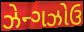
ઝેન્ગઝોઉ